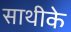
साथीके